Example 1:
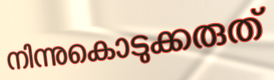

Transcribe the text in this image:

നിന്നുകൊടുക്കരുത്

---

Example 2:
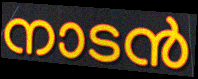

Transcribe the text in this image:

നാടൻ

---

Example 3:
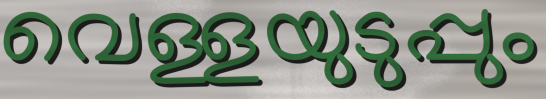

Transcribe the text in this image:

വെള്ളയുടുപ്പും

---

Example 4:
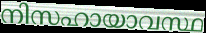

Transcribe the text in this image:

നിസഹായാവസ്ഥ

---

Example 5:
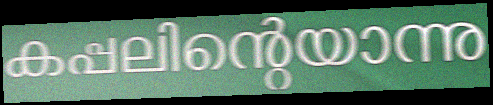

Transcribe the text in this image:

കപ്പലിന്റെയാന്നു